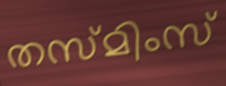
തസ്മിംസ്